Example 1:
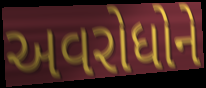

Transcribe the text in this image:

અવરોધોને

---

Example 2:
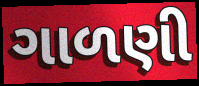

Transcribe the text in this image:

ગાળણી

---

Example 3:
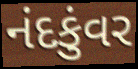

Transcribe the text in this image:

નંદકુંવર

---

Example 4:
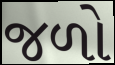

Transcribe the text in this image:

જળો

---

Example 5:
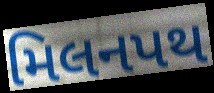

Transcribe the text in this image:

મિલનપથ